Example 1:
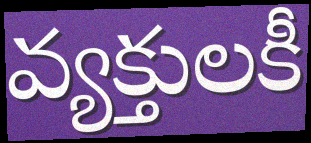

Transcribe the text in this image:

వ్యక్తులకీ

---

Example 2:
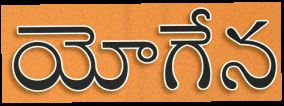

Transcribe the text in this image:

యోగేన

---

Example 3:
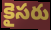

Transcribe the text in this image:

కైసరు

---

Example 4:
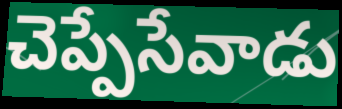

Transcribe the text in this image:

చెప్పేసేవాడు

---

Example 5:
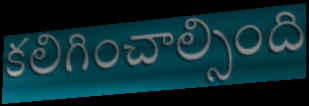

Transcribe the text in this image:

కలిగించాల్సింది